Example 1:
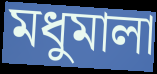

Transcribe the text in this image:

মধুমালা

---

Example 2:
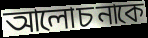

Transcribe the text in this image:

আলোচনাকে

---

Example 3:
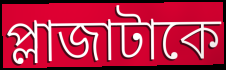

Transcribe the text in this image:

প্লাজাটাকে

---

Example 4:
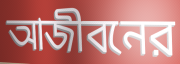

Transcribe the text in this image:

আজীবনের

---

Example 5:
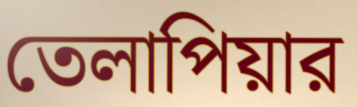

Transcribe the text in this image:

তেলাপিয়ার